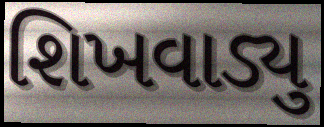
શિખવાડ્યુ